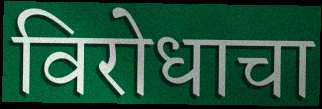
विरोधाचा